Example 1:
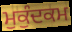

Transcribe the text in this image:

ਮੁਕੁੰਦਕਮ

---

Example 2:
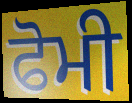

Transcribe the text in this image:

ਫੋਮੀ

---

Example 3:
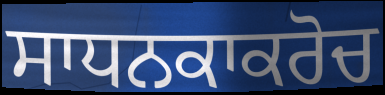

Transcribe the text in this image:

ਸਾਧਨਕਾਕਰੋਚ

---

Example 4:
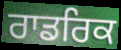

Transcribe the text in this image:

ਰਾਡਰਿਕ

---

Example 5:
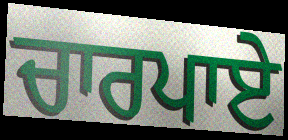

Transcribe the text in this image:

ਚਾਰਪਾਏ